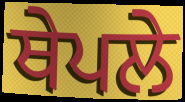
ਥੇਪਲੇ